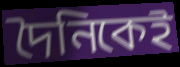
দৈনিকেই